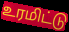
உரமிட்டு